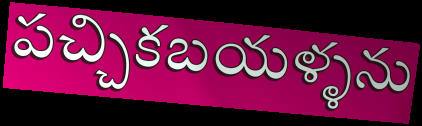
పచ్చికబయళ్ళను